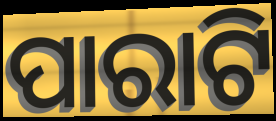
ପାରାଟି